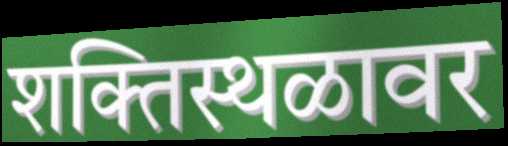
शक्तिस्थळावर